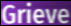
Grieve